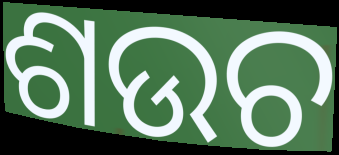
ଶଉଚ